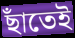
ছাঁতেই